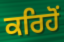
ਕਰਿਹੋਂ